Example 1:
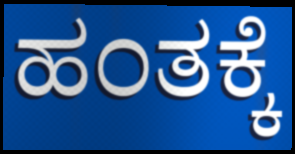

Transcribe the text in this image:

ಹಂತಕ್ಕೆ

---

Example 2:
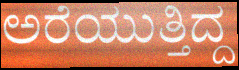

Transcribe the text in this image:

ಅರೆಯುತ್ತಿದ್ದ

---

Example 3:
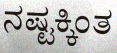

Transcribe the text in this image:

ನಷ್ಟಕ್ಕಿಂತ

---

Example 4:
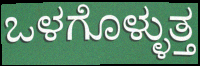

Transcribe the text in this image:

ಒಳಗೊಳ್ಳುತ್ತ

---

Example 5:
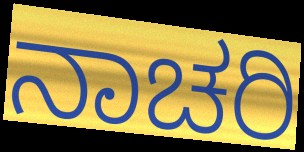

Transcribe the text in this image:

ನಾಚರಿ